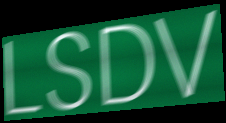
LSDV